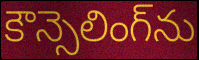
కౌన్సెలింగ్‌ను